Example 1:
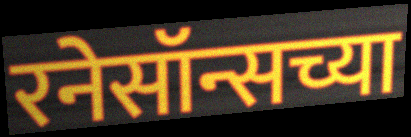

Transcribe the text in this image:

रनेसॉन्सच्या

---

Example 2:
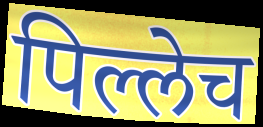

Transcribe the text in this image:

पिल्लेच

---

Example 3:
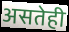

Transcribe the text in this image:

असतेही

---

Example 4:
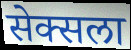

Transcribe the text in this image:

सेक्सला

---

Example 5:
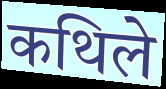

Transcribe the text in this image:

कथिले